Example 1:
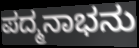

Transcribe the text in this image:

ಪದ್ಮನಾಭನು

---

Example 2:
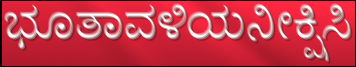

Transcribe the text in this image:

ಭೂತಾವಳಿಯನೀಕ್ಷಿಸಿ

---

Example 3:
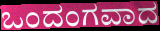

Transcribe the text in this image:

ಒಂದಂಗವಾದ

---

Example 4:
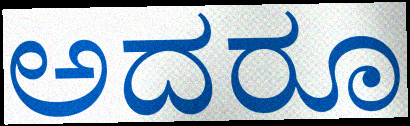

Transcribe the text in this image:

ಅದರೂ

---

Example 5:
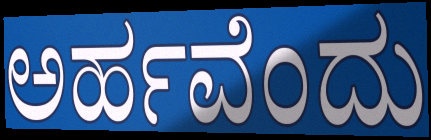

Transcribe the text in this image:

ಅರ್ಹವೆಂದು